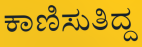
ಕಾಣಿಸುತಿದ್ದ